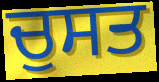
ਚੁਸਤ